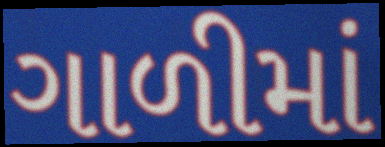
ગાળીમાં